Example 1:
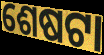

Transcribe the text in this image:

ଶେଷଟା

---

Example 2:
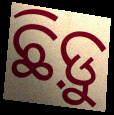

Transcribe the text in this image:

ଛିଡ଼ୁ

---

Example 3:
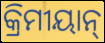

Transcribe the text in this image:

କ୍ରିମୀୟାନ୍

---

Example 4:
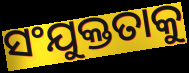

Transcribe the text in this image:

ସଂଯୁକ୍ତତାକୁ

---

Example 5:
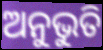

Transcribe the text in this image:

ଅନୁଭୁତି